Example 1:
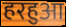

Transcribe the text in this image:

हरहुआ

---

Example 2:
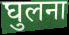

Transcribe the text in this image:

घुलना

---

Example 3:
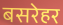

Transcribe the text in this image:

बसरेहर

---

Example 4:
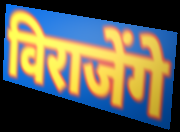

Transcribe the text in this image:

विराजेंगे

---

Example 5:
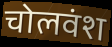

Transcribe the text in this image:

चोलवंश